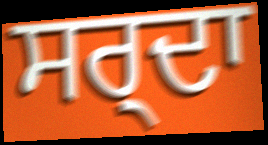
ਸਰ੍ਦਾ